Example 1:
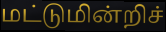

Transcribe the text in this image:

மட்டுமின்றிச்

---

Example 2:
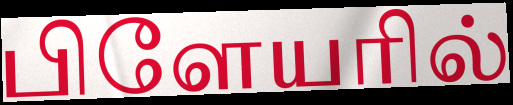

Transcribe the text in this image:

பிளேயரில்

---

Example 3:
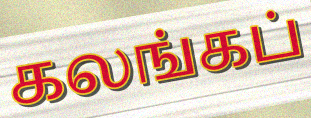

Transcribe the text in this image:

கலங்கப்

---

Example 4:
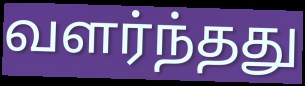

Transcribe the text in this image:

வளர்ந்தது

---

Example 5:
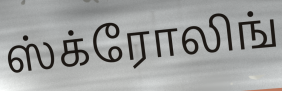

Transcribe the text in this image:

ஸ்க்ரோலிங்